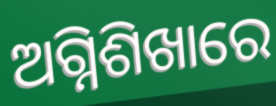
ଅଗ୍ନିଶିଖାରେ